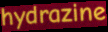
hydrazine